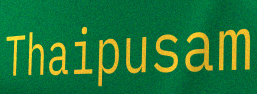
Thaipusam